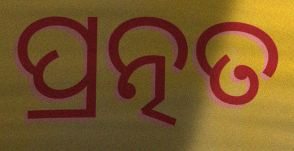
ପ୍ରତ୍ନତ